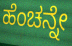
ಹೆಂಚನ್ನೇ